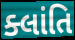
ક્લાંતિ